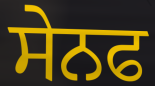
ਸੇਨਫ